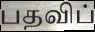
பதவிப்